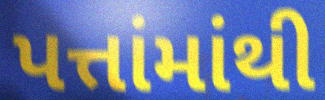
પત્તાંમાંથી